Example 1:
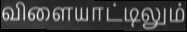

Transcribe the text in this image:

விளையாட்டிலும்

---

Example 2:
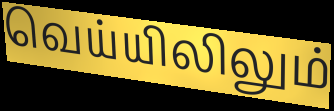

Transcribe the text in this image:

வெய்யிலிலும்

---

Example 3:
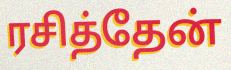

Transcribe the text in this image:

ரசித்தேன்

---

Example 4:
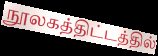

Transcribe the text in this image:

நூலகத்திட்டத்தில்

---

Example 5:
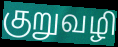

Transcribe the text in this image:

குறுவழி